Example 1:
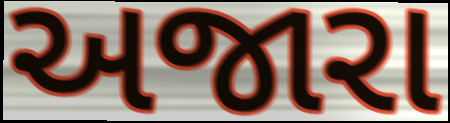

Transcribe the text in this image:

અજારા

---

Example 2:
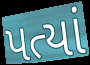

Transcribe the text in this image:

પત્યાં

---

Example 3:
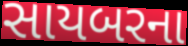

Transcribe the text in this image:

સાયબરના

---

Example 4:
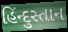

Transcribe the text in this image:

હિંન્દુસ્તાન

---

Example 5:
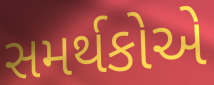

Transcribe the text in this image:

સમર્થકોએ